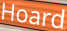
Hoard